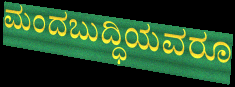
ಮಂದಬುದ್ಧಿಯವರೂ